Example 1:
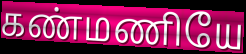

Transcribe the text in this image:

கண்மணியே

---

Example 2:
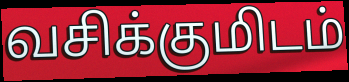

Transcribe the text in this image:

வசிக்குமிடம்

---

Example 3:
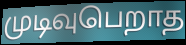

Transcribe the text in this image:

முடிவுபெறாத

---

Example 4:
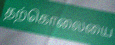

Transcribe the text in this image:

தற்கொலையை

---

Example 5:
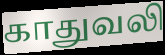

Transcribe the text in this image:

காதுவலி